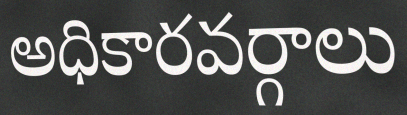
అధికారవర్గాలు